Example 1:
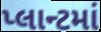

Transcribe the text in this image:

પ્લાન્ટમાં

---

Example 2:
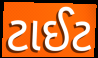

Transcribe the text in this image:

ટાઈટ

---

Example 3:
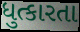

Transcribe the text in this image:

ધુત્કારતા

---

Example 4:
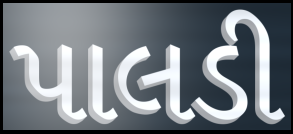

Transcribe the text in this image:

પાલડી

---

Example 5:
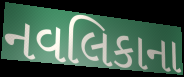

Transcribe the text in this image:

નવલિકાના